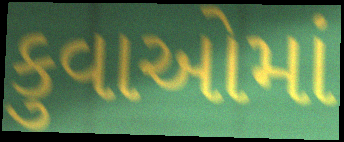
કુવાઓમાં